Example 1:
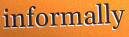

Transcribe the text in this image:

informally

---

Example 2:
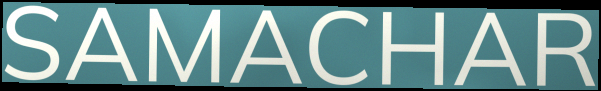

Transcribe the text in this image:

SAMACHAR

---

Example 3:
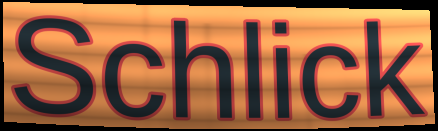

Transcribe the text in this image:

Schlick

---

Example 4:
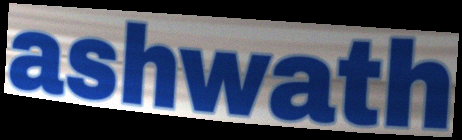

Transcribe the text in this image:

ashwath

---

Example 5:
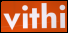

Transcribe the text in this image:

vithi